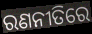
ରଣନୀତିରେ